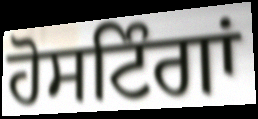
ਹੋਸਟਿੰਗਾਂ